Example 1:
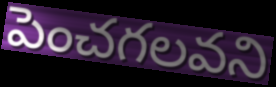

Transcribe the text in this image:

పెంచగలవని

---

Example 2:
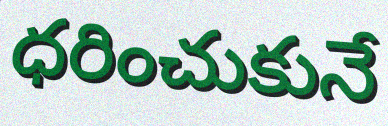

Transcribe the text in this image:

ధరించుకునే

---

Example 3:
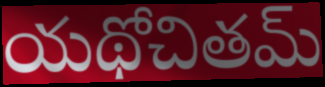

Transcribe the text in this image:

యథోచితమ్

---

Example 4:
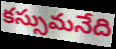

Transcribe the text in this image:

కస్సుమనేది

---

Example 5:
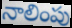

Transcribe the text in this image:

నాలింపు